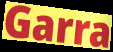
Garra